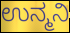
ಉನ್ಮನಿ